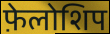
फ़ेलोशिप